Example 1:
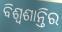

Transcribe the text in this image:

ବିଶ୍ୱଶାନ୍ତିର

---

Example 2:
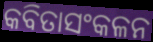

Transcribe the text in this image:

କବିତାସଂକଳନ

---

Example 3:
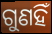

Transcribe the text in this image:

ଗୁଣହିଁ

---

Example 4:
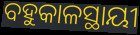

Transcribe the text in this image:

ବହୁକାଳସ୍ଥାୟୀ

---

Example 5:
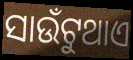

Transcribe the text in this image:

ସାଉଁଟୁଥାଏ